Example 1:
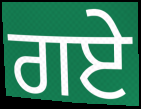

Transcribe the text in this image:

ਗਏ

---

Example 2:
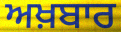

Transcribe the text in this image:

ਅਖ਼ਬਾਰ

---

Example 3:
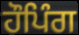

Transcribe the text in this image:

ਹੌਪਿੰਗ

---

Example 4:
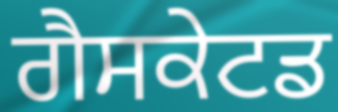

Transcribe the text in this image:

ਗੈਸਕੇਟਡ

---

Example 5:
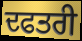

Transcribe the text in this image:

ਦਫਤਰੀ